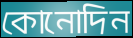
কোনোদিন